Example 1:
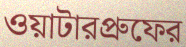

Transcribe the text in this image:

ওয়াটারপ্রুফের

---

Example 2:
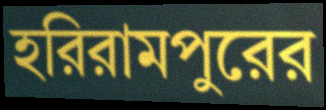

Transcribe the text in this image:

হরিরামপুরের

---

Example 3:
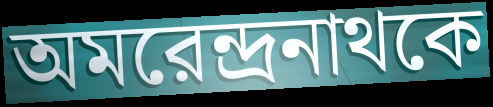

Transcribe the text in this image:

অমরেন্দ্রনাথকে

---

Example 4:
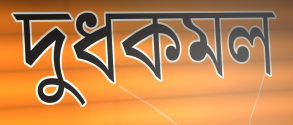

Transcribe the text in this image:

দুধকমল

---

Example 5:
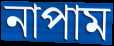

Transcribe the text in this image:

নাপাম